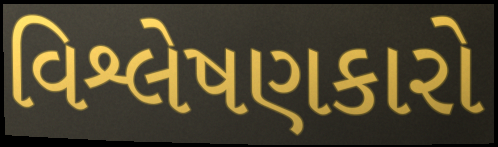
વિશ્લેષણકારો